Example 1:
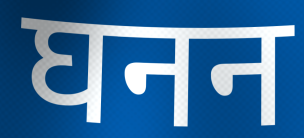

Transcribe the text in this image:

घनन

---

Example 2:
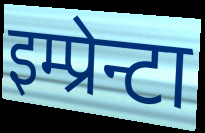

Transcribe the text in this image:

इम्प्रेन्टा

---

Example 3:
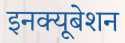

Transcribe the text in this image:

इनक्यूबेशन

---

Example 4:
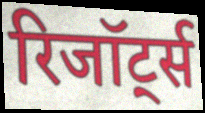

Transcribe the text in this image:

रिजॉर्ट्स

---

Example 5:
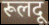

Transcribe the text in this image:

रूलदू